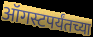
ऑगस्टपर्यंतच्या